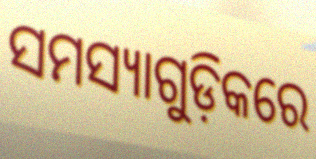
ସମସ୍ୟାଗୁଡ଼ିକରେ